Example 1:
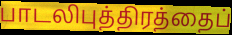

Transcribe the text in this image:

பாடலிபுத்திரத்தைப்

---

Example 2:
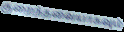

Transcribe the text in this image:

குறைந்தவையாகவும்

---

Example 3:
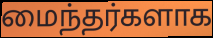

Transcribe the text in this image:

மைந்தர்களாக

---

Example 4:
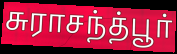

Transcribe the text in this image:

சுராசந்த்பூர்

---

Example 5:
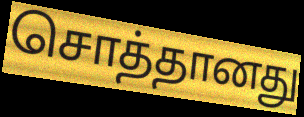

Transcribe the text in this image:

சொத்தானது